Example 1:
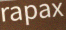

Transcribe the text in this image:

rapax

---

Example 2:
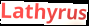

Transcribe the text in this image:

Lathyrus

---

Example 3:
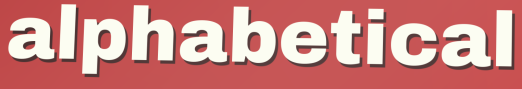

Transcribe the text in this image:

alphabetical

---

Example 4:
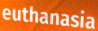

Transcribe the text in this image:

euthanasia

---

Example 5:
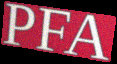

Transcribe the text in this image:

PFA